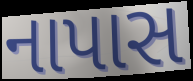
નાપાસ